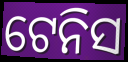
ଟେନିସ